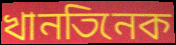
খানতিনেক